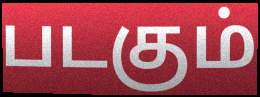
படகும்